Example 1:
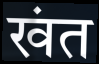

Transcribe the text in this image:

खंत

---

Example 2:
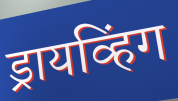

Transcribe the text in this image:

ड्रायव्हिंग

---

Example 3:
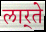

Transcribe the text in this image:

लार्ते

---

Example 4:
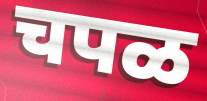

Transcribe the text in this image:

चपळ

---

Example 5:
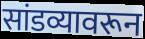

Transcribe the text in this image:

सांडव्यावरून